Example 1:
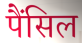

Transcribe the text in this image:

पैंसिल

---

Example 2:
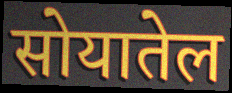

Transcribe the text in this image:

सोयातेल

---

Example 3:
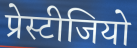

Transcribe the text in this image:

प्रेस्टीजियो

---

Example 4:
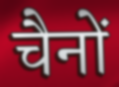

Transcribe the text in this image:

चैनों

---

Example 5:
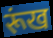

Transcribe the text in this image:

रूंख